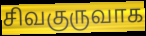
சிவகுருவாக